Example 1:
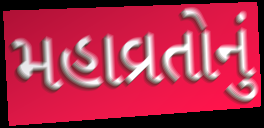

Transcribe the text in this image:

મહાવ્રતોનું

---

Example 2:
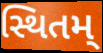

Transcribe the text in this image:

સ્થિતમ્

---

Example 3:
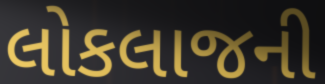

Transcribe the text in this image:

લોકલાજની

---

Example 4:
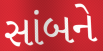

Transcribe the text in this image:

સાંબને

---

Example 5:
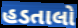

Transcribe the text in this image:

હડતાલો